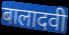
बालादवी